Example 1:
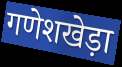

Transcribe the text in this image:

गणेशखेड़ा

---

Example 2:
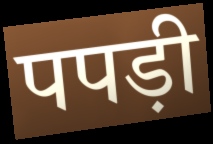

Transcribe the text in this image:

पपड़ी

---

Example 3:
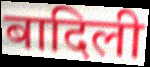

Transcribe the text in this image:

बादिली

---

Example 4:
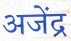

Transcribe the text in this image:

अजेंद्र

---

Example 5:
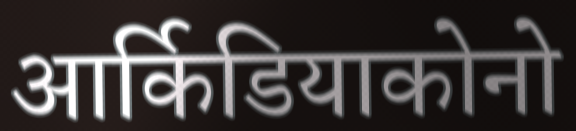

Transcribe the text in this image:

आर्किडियाकोनो